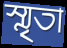
স্মৃতা